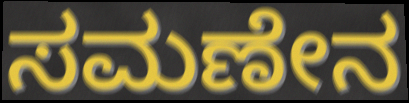
ಸಮಣೇನ